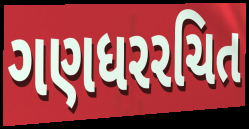
ગણધરરચિત